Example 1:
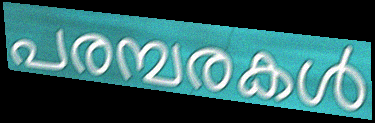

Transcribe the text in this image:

പരമ്പരകൾ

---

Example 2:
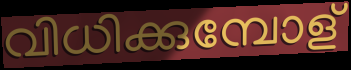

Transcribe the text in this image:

വിധിക്കുമ്പോള്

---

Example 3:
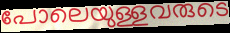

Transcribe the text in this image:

പോലെയുള്ളവരുടെ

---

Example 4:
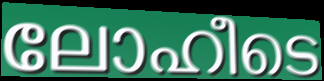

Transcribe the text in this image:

ലോഹീടെ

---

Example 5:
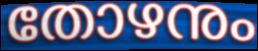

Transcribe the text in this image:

തോഴനും